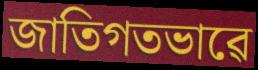
জাতিগতভাৱে